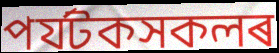
পৰ্যটকসকলৰ